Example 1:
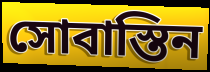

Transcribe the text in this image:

সোবাস্তিন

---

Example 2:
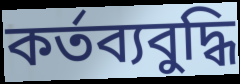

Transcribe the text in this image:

কর্তব্যবুদ্ধি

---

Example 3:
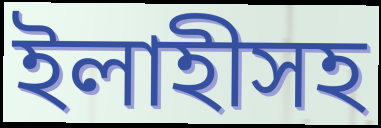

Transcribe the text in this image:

ইলাহীসহ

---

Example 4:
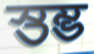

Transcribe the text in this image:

স্তম্ভ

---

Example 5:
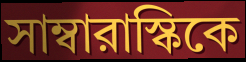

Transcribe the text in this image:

সাম্বারাস্কিকে